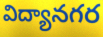
విద్యానగర